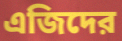
এজিদের